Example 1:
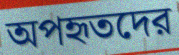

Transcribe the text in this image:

অপহৃতদের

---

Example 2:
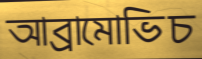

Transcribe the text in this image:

আব্রামোভিচ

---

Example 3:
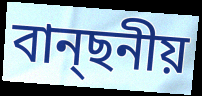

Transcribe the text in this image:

বান্ছনীয়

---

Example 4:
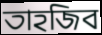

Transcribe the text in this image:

তাহজিব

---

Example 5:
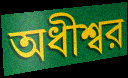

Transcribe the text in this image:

অধীশ্বর